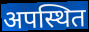
अपस्थित